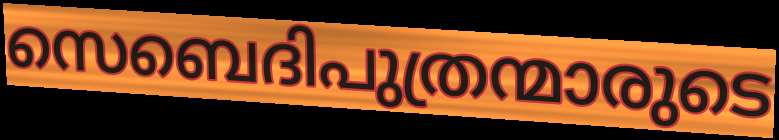
സെബെദിപുത്രന്മാരുടെ